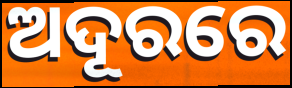
ଅଦୂରରେ